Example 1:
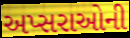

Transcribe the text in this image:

અપ્સરાઓની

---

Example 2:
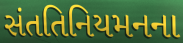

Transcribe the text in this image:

સંતતિનિયમનના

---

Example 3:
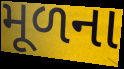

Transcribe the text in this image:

મૂળના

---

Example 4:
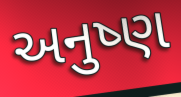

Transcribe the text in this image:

અનુષ્ણ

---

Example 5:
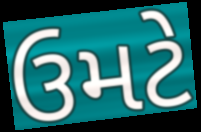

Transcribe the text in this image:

ઉમટે